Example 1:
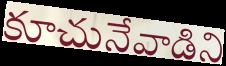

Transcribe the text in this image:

కూచునేవాడిని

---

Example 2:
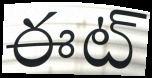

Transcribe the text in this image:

ఈట్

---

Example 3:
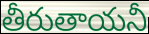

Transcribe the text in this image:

తీరుతాయనీ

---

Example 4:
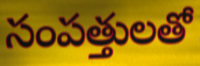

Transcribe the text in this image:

సంపత్తులతో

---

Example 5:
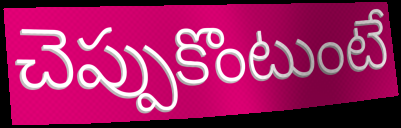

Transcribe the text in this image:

చెప్పుకొంటుంటే